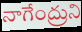
నాగేంద్రుని